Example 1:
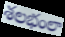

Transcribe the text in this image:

శలభంలా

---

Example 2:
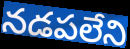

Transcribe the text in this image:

నడపలేని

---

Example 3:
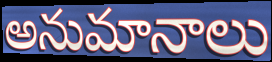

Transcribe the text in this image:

అనుమానాలు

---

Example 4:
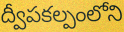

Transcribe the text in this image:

ద్వీపకల్పంలోని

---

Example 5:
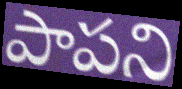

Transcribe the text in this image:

పాపని